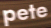
pete